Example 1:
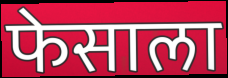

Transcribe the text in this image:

फेसाला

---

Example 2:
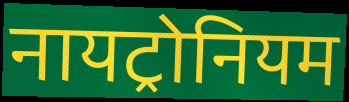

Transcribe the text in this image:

नायट्रोनियम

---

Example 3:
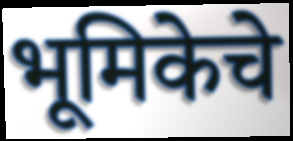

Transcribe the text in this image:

भूमिकेचे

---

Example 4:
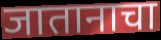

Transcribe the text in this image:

जातानाचा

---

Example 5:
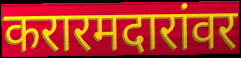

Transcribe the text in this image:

करारमदारांवर